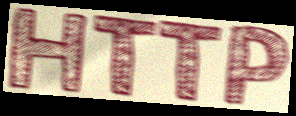
HTTP